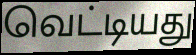
வெட்டியது